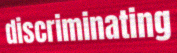
discriminating